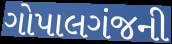
ગોપાલગંજની